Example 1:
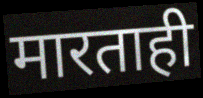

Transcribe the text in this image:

मारताही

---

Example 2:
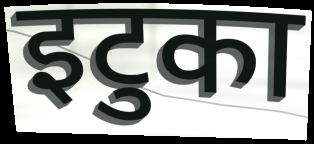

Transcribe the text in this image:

इटुका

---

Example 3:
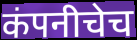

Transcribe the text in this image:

कंपनीचेच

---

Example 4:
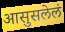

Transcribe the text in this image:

आसुसलेलं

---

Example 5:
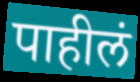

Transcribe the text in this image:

पाहीलं